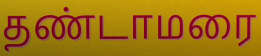
தண்டாமரை